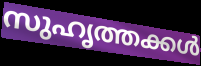
സുഹൃത്തക്കൾ